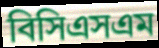
বিসিএসএম